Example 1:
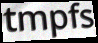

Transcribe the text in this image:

tmpfs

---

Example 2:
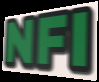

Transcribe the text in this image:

NFI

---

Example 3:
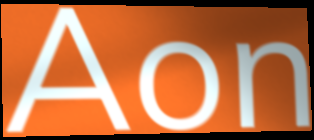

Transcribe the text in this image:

Aon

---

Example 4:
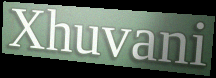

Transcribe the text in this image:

Xhuvani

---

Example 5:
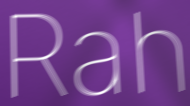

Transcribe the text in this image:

Rah